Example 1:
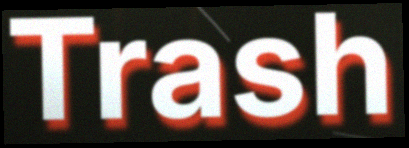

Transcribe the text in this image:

Trash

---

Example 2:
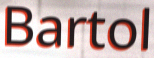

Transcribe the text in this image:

Bartol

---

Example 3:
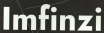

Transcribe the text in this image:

Imfinzi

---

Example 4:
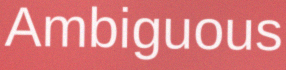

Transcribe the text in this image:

Ambiguous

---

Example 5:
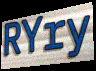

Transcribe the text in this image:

RYry